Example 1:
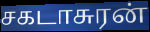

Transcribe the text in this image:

சகடாசுரன்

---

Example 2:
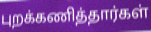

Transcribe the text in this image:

புறக்கணித்தார்கள்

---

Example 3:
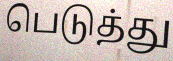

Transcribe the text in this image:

பெடுத்து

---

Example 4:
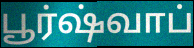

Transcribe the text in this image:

பூர்ஷ்வாப்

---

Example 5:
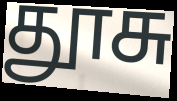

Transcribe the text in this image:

தூசு